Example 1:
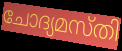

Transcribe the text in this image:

ചോദ്യമസ്തി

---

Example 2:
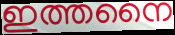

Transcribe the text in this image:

ഇത്തനൈ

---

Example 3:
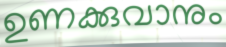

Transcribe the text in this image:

ഉണക്കുവാനും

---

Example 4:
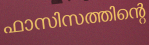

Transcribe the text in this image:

ഫാസിസത്തിന്റെ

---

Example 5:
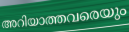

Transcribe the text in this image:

അറിയാത്തവരെയും